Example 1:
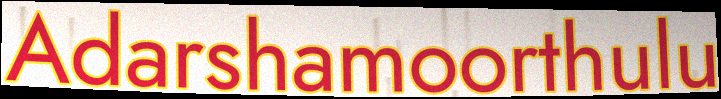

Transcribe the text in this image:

Adarshamoorthulu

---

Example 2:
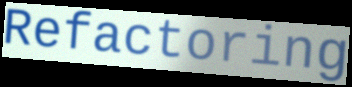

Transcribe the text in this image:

Refactoring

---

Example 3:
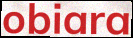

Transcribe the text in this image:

obiara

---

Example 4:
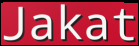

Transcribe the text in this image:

Jakat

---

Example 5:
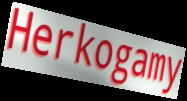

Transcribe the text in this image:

Herkogamy